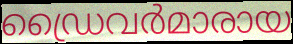
ഡ്രൈവർമാരായ